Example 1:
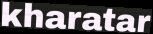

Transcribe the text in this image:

kharatar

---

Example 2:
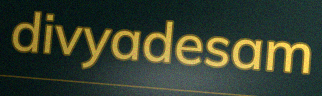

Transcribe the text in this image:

divyadesam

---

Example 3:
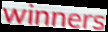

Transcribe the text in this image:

winners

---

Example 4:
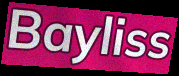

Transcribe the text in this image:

Bayliss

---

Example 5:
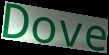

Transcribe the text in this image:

Dove